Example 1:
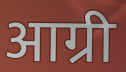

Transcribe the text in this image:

आग्री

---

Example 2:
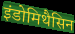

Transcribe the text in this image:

इंडोमिथैसिन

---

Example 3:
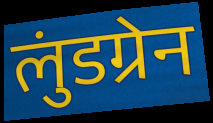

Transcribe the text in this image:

लुंडग्रेन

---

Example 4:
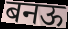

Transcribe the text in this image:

बनऊ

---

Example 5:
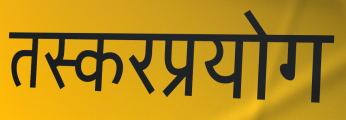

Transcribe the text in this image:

तस्करप्रयोग